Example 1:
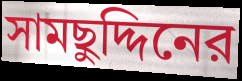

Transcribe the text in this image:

সামছুদ্দিনের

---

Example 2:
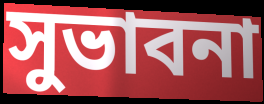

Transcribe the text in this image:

সুভাবনা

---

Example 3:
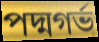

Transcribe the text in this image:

পদ্মগর্ভ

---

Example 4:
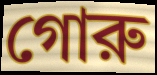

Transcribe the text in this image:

গোরু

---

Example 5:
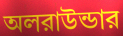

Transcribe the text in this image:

অলরাউন্ডার